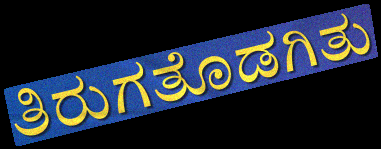
ತಿರುಗತೊಡಗಿತು